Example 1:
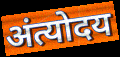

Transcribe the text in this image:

अंत्योदय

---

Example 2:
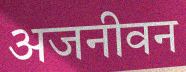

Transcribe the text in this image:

अजनीवन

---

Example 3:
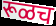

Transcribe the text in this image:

रूळच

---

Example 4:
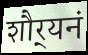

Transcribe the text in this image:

शौर्यनं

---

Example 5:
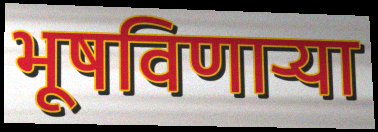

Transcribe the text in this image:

भूषविणाऱ्या